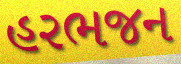
હરભજન